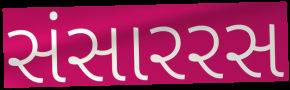
સંસારરસ